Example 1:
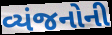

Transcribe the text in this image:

વ્યંજનોની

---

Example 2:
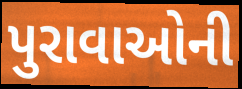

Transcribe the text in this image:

પુરાવાઓની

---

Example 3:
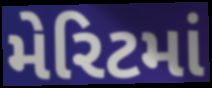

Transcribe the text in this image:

મેરિટમાં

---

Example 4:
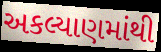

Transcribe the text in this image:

અકલ્યાણમાંથી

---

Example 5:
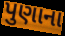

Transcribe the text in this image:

પુણાના